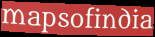
mapsofindia